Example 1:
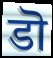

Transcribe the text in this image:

डॊ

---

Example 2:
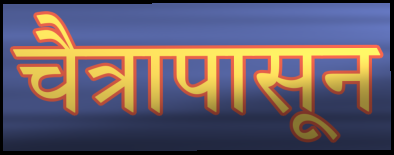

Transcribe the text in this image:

चैत्रापासून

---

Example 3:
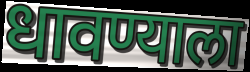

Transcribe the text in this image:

धावण्याला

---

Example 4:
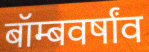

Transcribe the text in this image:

बॉम्बवर्षांव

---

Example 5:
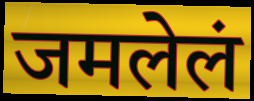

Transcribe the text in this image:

जमलेलं